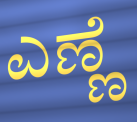
ಎಣ್ಣೆ